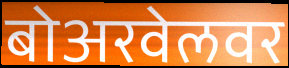
बोअरवेलवर